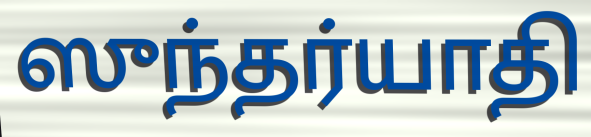
ஸுந்தர்யாதி